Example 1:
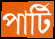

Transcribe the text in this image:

পার্টি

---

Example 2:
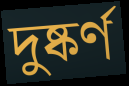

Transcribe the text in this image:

দুষ্কর্ণ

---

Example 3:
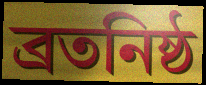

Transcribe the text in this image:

ব্রতনিষ্ঠ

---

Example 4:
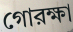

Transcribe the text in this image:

গোরক্ষা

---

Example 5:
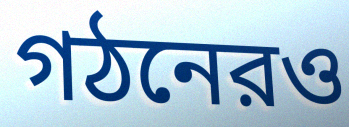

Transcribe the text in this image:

গঠনেরও